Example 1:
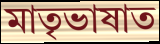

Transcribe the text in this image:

মাতৃভাষাত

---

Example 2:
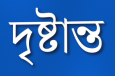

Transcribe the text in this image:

দৃষ্টান্ত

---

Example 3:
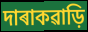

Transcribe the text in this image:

দাৰাকৱাড়ি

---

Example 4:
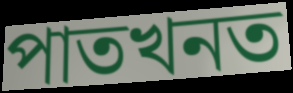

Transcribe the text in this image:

পাতখনত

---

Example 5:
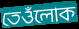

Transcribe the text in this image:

তেওঁলোক